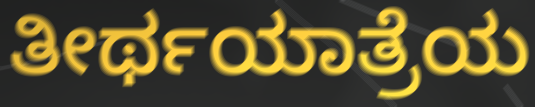
ತೀರ್ಥಯಾತ್ರೆಯ